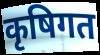
कृषिगत